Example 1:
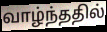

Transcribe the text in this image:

வாழ்ந்ததில்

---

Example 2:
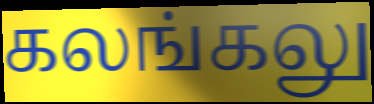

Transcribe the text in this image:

கலங்கலு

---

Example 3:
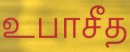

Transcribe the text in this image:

உபாசீத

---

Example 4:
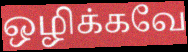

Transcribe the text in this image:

ஒழிக்கவே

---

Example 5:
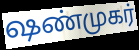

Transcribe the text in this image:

ஷண்முகர்